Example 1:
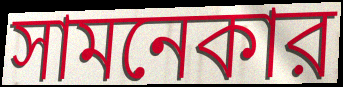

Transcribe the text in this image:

সামনেকার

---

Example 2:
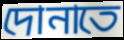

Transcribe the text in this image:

দোনাতে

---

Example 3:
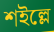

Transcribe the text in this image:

শইল্লে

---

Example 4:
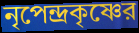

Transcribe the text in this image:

নৃপেন্দ্রকৃষ্ণের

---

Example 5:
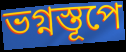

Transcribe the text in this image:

ভগ্নস্তূপে